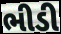
ભીડી